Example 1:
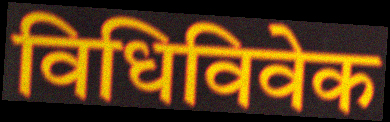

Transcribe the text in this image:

विधिविवेक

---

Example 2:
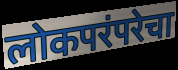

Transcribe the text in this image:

लोकपरंपरेचा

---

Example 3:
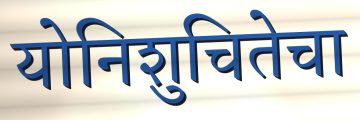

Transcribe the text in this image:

योनिशुचितेचा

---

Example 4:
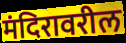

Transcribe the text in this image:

मंदिरावरील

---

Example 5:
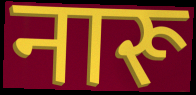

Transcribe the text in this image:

नारू